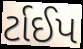
ર્ટાઈપ